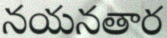
నయనతార